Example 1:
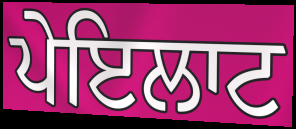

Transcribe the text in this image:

ਪੇਇਲਾਟ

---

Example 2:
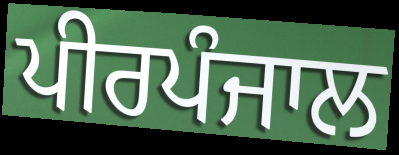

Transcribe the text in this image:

ਪੀਰਪੰਜਾਲ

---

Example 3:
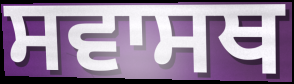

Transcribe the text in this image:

ਸਵਾਸਥ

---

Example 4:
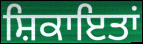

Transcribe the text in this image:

ਸ਼ਿਕਾਇਤਾਂ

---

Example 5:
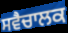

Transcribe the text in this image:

ਸਵੈਚਾਲਕ